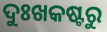
ଦୁଃଖକଷ୍ଟରୁ